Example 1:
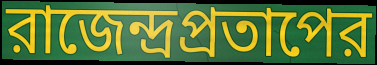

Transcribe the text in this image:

রাজেন্দ্রপ্রতাপের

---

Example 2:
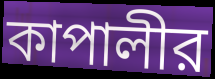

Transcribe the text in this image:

কাপালীর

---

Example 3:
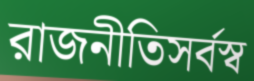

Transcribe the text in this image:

রাজনীতিসর্বস্ব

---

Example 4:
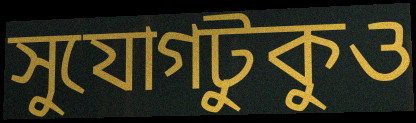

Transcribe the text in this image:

সুযোগটুকুও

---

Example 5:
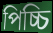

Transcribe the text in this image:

পিচ্চি